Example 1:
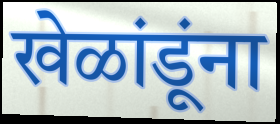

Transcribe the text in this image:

खेळांडूंना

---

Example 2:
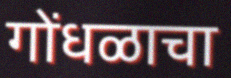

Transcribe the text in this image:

गोंधळाचा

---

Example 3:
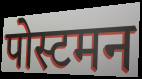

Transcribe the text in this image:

पोस्टमन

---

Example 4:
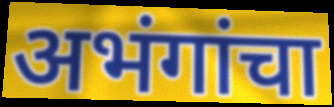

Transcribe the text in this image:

अभंगांचा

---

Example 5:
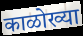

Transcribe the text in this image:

काळोख्या